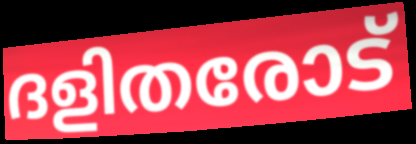
ദളിതരോട്